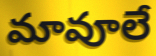
మావూలే